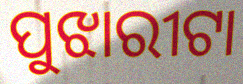
ପୁଝାରୀଟା